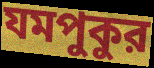
যমপুকুর